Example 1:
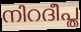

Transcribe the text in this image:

നിറദീപ്ത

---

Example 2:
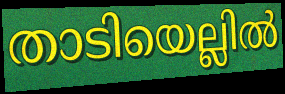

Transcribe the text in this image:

താടിയെല്ലിൽ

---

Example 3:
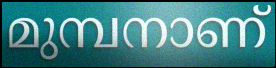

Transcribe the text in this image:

മുമ്പനാണ്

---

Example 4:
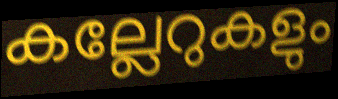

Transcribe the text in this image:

കല്ലേറുകളും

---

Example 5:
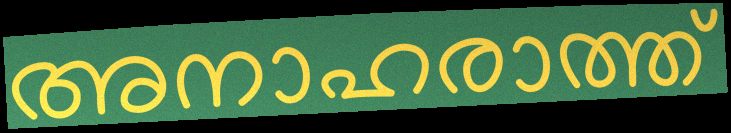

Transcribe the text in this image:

അനാഹരാത്ത്